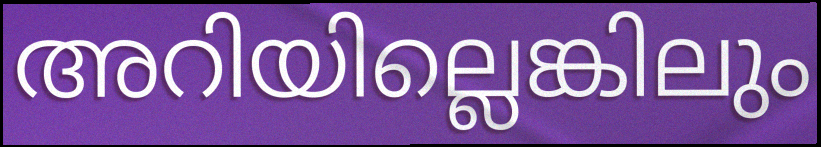
അറിയില്ലെങ്കിലും